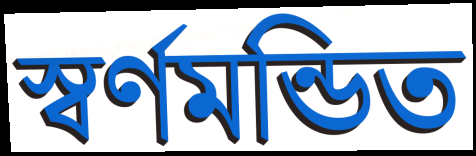
স্বর্ণমন্ডিত